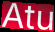
Atu